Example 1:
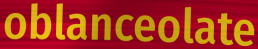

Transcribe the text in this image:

oblanceolate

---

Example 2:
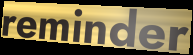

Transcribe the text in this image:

reminder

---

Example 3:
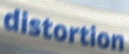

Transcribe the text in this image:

distortion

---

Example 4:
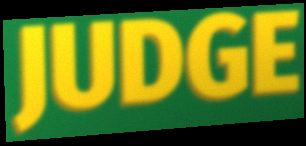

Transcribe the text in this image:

JUDGE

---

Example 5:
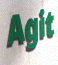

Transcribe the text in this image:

Agit